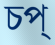
চপ্